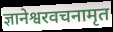
ज्ञानेश्वरवचनामृत